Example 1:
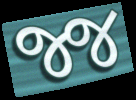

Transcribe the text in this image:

જ્જ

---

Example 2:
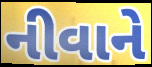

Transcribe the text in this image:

નીવાને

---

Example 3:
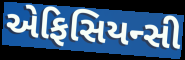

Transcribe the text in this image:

એફિસિયન્સી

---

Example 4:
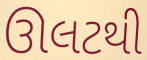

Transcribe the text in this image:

ઊલટથી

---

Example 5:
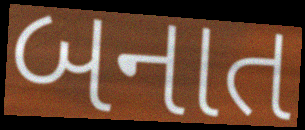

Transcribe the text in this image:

બનાત